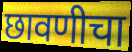
छावणीचा